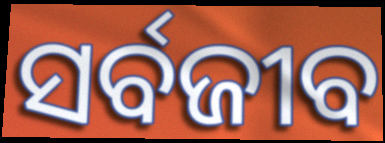
ସର୍ବଜୀବ